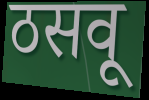
ठसवू